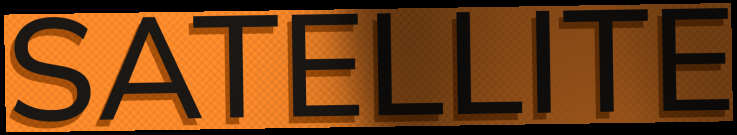
SATELLITE